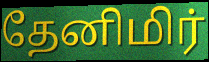
தேனிமிர்